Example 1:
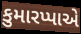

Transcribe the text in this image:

કુમારપ્પાએ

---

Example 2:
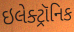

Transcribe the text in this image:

ઇલેક્ટ્રૉનિક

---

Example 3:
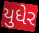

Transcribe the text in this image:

યુધેર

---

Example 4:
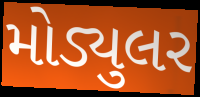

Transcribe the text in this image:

મોડ્યુલર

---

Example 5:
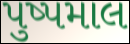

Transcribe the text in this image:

પુષ્પમાલ